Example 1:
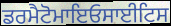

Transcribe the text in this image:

ਡਰਮੈਟੋਮਾਇਓਸਾਈਟਿਸ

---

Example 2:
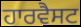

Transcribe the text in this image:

ਹਾਰਵੈਸਟ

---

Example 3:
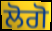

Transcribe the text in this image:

ਲੋਗੋ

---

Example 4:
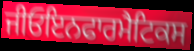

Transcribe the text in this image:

ਜੀਓਇਨਫਾਰਮੈਟਿਕਸ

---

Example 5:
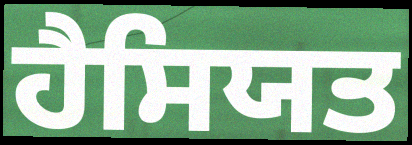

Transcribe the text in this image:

ਹੈਸਿਯਤ